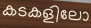
കടകളിലോ